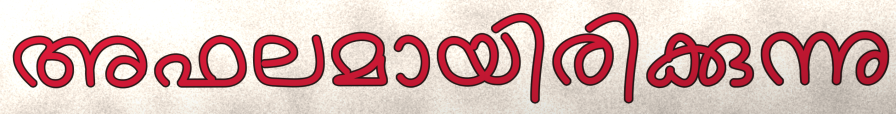
അഫലമായിരിക്കുന്നു